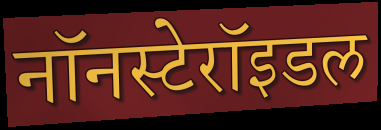
नॉनस्टेरॉइडल